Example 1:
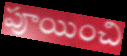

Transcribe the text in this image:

పూయించి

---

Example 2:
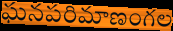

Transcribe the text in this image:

ఘనపరిమాణంగల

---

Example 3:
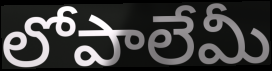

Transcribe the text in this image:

లోపాలేమీ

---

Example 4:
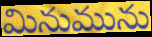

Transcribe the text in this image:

మినుమును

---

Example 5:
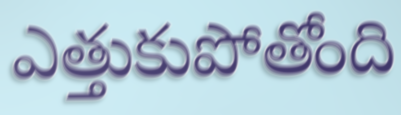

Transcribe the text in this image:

ఎత్తుకుపోతోంది